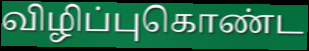
விழிப்புகொண்ட